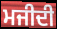
ਮਜੀਦੀ